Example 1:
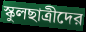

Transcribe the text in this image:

স্কুলছাত্রীদের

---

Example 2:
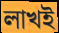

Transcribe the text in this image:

লাখই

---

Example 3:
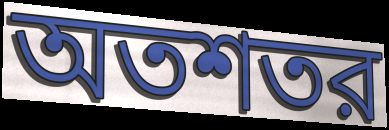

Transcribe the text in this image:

অতশতর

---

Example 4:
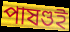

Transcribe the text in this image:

পাষণ্ডই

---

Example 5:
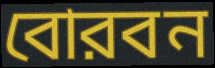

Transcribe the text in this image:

বোরবন